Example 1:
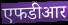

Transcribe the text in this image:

एफडीआर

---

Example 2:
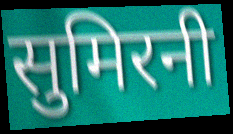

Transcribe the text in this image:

सुमिरनी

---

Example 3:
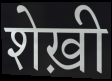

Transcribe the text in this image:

शेख़ी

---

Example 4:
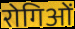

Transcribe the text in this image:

रोगिओं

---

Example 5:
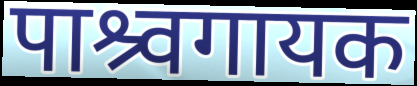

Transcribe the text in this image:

पाश्र्वगायक